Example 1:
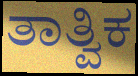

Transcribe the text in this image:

ತಾತ್ವಿಕ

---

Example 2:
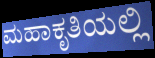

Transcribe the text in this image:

ಮಹಾಕೃತಿಯಲ್ಲಿ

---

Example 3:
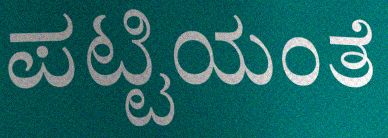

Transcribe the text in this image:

ಪಟ್ಟಿಯಂತೆ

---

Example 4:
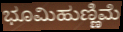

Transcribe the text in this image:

ಭೂಮಿಹುಣ್ಣಿಮೆ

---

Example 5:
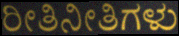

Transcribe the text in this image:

ರೀತಿನೀತಿಗಳು